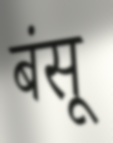
बंसू